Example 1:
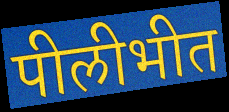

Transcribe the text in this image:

पीलीभीत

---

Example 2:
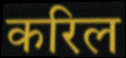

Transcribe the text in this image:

करिल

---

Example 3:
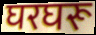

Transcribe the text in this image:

घरघरू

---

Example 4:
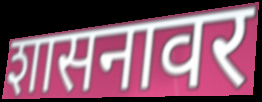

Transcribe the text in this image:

शासनावर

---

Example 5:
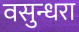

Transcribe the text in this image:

वसुन्धरा